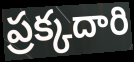
ప్రక్కదారి